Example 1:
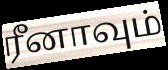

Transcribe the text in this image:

ரீனாவும்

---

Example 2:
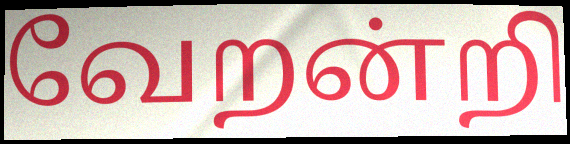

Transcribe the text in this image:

வேறன்றி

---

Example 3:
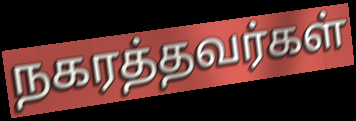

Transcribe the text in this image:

நகரத்தவர்கள்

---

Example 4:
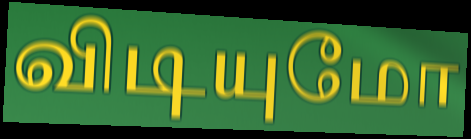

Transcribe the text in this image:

விடியுமோ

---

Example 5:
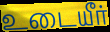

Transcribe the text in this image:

உடையீர்